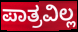
ಪಾತ್ರವಿಲ್ಲ